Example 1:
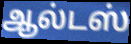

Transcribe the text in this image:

ஆல்டஸ்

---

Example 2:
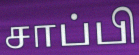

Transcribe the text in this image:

சாப்பி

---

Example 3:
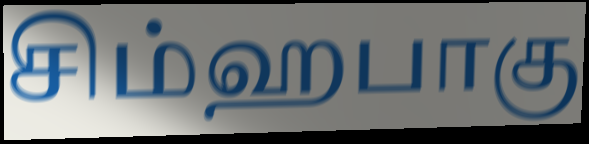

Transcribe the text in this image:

சிம்ஹபாகு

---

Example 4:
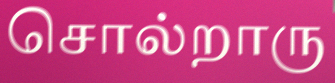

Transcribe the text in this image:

சொல்றாரு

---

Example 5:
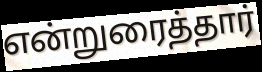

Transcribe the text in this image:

என்றுரைத்தார்